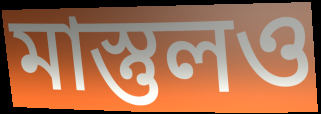
মাস্তুলও